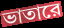
ভাতারে